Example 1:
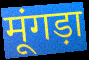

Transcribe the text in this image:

मूंगड़ा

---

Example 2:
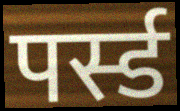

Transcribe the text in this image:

पर्स्ड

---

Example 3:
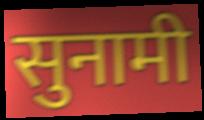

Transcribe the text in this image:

सुनामी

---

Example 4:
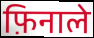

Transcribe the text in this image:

फ़िनाले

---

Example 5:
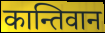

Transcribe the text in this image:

कान्तिवान